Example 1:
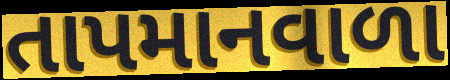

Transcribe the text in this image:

તાપમાનવાળા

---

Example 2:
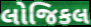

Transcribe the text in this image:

લોજિકલ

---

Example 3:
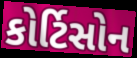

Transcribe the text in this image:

કોર્ટિસોન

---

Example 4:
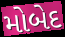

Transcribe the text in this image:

મોબેદ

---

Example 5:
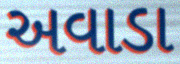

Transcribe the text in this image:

અવાડા